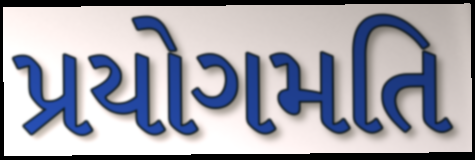
પ્રયોગમતિ